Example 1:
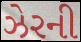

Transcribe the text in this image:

ઝેરની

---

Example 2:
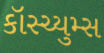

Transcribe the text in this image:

કૉસ્ચ્યુમ્સ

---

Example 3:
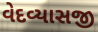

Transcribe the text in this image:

વેદવ્યાસજી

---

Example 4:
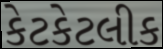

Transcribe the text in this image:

કેટકેટલીક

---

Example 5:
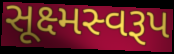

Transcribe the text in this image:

સૂક્ષ્મસ્વરૂપ